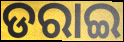
ଡରାଇ